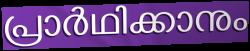
പ്രാർഥിക്കാനും